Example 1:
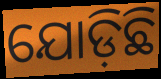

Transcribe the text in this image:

ଯୋଡ଼ିଛି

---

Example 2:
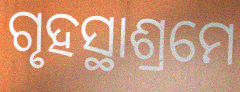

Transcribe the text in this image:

ଗୃହସ୍ଥାଶ୍ରମେ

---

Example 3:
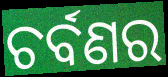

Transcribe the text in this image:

ଚର୍ବଣର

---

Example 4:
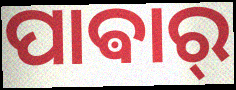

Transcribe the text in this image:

ପାଵାର୍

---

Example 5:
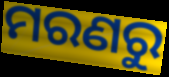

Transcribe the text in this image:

ମରଣରୁ